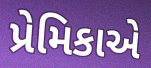
પ્રેમિકાએ